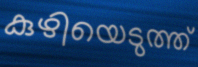
കുഴിയെടുത്ത്